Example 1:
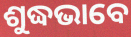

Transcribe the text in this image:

ଶୁଦ୍ଧଭାବେ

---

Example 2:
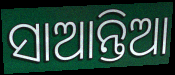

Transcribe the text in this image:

ସାଆନ୍ତିଆ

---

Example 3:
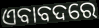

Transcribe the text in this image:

ଏବାବଦରେ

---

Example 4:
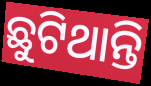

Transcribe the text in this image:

ଛୁଟିଥାନ୍ତି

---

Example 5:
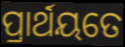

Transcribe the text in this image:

ପ୍ରାର୍ଥୟତେ